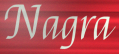
Nagra